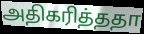
அதிகரித்ததா